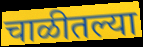
चाळीतल्या